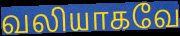
வலியாகவே